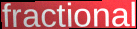
fractional